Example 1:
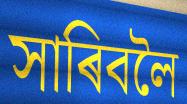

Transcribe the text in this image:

সাৰিবলৈ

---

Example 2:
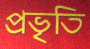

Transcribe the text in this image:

প্ৰভৃতি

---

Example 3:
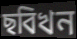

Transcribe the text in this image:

ছবিখন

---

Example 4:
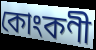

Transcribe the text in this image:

কোংকণী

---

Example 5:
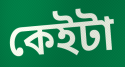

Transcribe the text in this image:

কেইটা